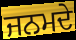
ਜਨਮਦੇ